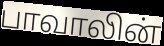
பாவாலின்